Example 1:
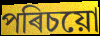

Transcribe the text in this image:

পৰিচয়ো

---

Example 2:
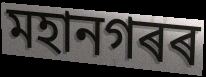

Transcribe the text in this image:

মহানগৰৰ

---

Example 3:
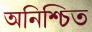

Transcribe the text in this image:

অনিশ্চিত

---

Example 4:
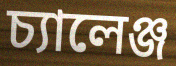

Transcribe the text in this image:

চ্যালেঞ্জ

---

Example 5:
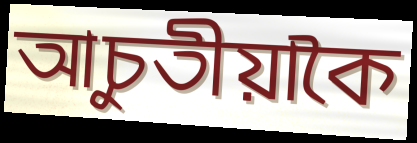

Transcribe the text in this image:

আচুতীয়াকৈ